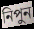
নিপুন